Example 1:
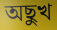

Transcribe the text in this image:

অছুখ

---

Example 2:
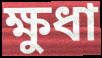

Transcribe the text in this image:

ক্ষুধা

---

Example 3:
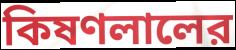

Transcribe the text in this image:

কিষণলালের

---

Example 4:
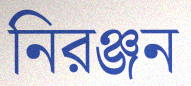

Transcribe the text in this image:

নিরঞ্জন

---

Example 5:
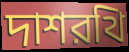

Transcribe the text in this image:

দাশরথি